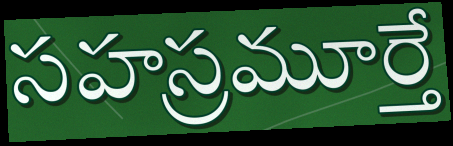
సహస్రమూర్తే